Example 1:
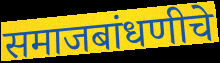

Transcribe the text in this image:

समाजबांधणीचे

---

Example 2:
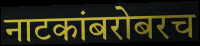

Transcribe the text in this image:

नाटकांबरोबरच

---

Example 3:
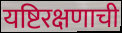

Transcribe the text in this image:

यष्टिरक्षणाची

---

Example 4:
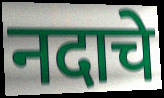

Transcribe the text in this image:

नदाचे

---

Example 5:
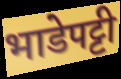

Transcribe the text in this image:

भाडेपट्टी